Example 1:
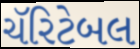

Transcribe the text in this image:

ચૅરિટેબલ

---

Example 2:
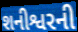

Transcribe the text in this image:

શનીશ્વરની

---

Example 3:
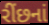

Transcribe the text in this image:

રીંછનાં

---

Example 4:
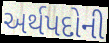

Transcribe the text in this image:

અર્થપદોની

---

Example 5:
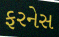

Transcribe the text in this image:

ફરનેસ